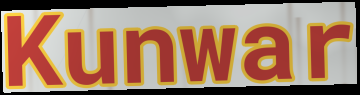
Kunwar